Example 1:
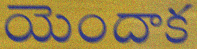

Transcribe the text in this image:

యెందాక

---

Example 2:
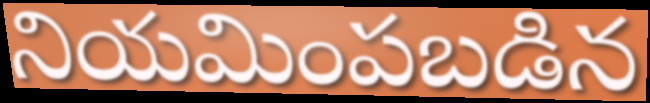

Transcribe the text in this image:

నియమింపబడిన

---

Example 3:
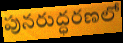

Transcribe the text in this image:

పునరుద్ధరణలో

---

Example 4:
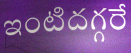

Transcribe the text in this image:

ఇంటిదగ్గరే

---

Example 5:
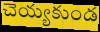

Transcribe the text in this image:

చెయ్యకుండ